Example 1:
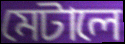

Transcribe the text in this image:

মেটালে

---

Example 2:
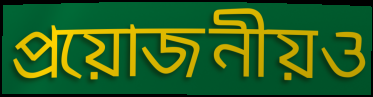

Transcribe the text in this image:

প্রয়োজনীয়ও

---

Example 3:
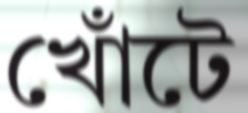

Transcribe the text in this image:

খোঁটে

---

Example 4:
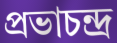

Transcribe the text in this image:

প্রভাচন্দ্র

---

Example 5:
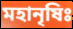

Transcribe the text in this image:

মহানৃষিঃ